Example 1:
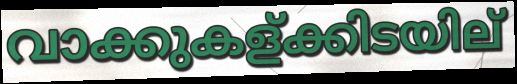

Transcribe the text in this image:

വാക്കുകള്ക്കിടയില്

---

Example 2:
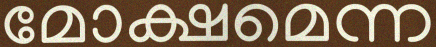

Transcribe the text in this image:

മോക്ഷമെന്ന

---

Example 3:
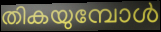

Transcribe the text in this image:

തികയുമ്പോൾ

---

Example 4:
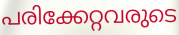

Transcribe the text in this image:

പരിക്കേറ്റവരുടെ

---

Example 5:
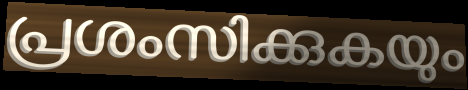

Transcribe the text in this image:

പ്രശംസിക്കുകയും